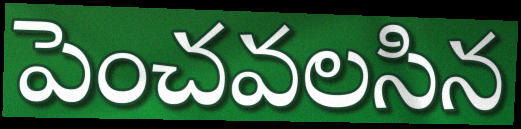
పెంచవలసిన